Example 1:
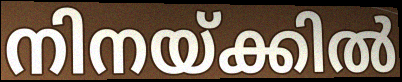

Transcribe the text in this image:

നിനയ്ക്കിൽ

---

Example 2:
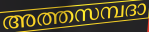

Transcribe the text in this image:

അത്തസമ്പദാ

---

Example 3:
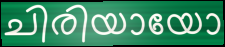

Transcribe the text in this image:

ചിരിയായോ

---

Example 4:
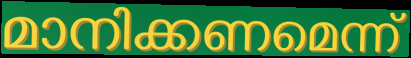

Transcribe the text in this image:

മാനിക്കണമെന്ന്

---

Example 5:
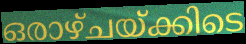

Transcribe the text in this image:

ഒരാഴ്ചയ്ക്കിടെ